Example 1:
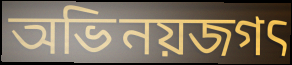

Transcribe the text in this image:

অভিনয়জগৎ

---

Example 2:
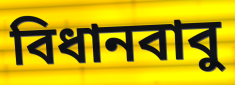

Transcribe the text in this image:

বিধানবাবু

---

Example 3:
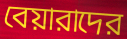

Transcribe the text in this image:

বেয়ারাদের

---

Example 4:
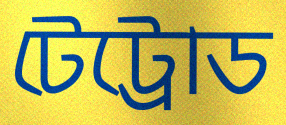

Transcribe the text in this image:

টেট্রোড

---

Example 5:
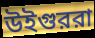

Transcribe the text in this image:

উইগুররা